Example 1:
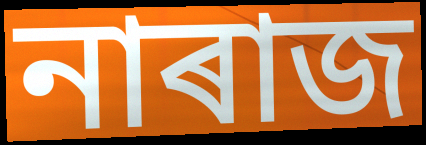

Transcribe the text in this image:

নাৰাজ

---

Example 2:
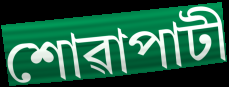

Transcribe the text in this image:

শোৱাপাটী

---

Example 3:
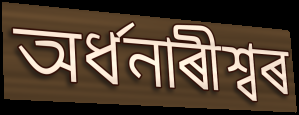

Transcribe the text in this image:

অৰ্ধনাৰীশ্বৰ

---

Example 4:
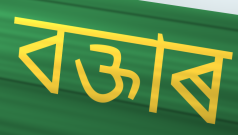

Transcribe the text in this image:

বক্তাৰ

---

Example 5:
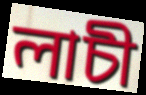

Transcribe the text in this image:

লাচী